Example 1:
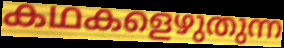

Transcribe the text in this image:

കഥകളെഴുതുന്ന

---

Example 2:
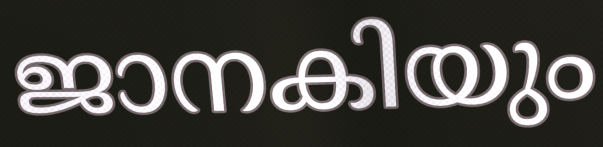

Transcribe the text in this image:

ജാനകിയും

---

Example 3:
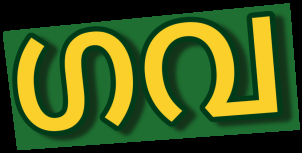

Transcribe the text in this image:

ഗവ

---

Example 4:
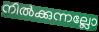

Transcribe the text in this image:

നിൽക്കുന്നല്ലോ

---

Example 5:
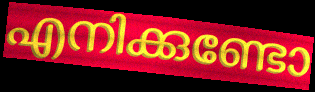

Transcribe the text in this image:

എനിക്കുണ്ടോ